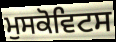
ਮੁਸਕੋਵਿਟਸ